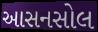
આસનસોલ